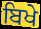
ਬਿਖੇ